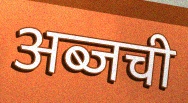
अब्जची